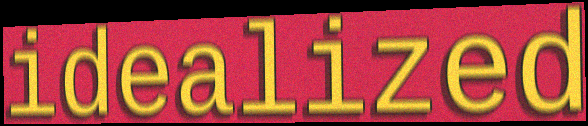
idealized